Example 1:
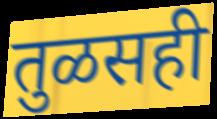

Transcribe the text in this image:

तुळसही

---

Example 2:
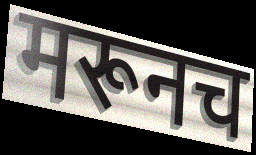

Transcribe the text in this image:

मरूनच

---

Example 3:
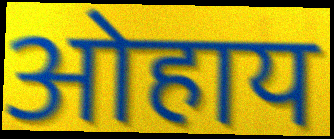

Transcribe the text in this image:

ओहाय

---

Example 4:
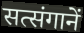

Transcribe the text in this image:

सत्संगानें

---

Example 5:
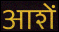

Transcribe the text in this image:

आशें